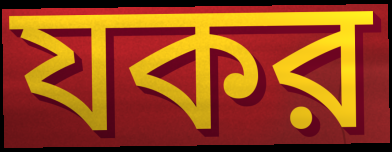
যকর